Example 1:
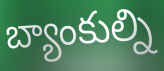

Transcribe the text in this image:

బ్యాంకుల్ని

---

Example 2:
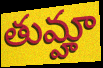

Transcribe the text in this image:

తుమ్హా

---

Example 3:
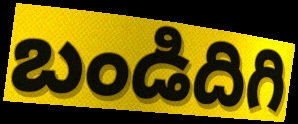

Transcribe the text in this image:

బండిదిగి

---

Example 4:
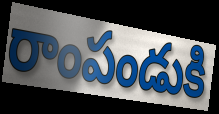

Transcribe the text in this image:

రాంపండుకి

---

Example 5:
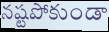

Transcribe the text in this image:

నష్టపోకుండా